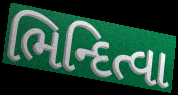
ભિન્દિત્વા